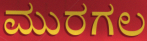
ಮುರಗಲ